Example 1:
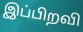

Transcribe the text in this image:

இப்பிறவி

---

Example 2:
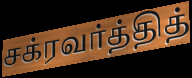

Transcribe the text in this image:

சக்ரவர்த்தித்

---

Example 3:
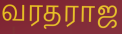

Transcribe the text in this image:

வரதராஜ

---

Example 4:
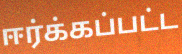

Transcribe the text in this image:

ஈர்க்கப்பட்ட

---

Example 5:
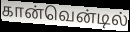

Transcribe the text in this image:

கான்வென்டில்